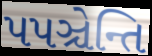
પપઞ્ચેન્તિ